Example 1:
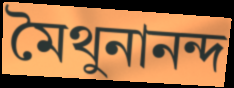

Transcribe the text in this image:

মৈথুনানন্দ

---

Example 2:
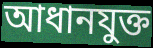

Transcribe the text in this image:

আধানযুক্ত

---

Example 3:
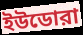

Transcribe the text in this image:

ইউডোরা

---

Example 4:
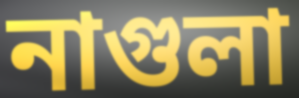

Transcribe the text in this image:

নাগুলা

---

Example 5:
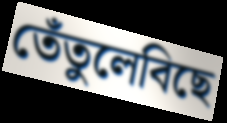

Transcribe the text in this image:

তেঁতুলেবিছে